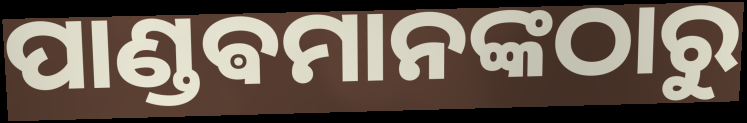
ପାଣ୍ଡଵମାନଙ୍କଠାରୁ